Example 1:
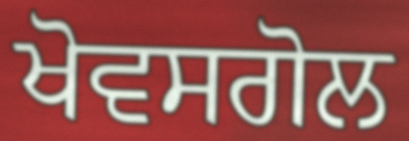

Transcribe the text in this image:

ਖੋਵਸਗੋਲ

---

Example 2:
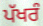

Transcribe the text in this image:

ਪੱਖਰੰ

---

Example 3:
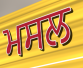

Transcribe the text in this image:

ਮਸਲ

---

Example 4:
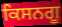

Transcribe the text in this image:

ਕਿਸਨਗੂ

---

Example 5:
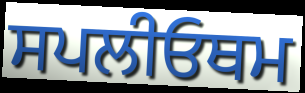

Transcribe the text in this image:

ਸਪਲੀਓਥਮ